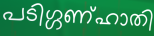
പടിഗ്ഗണ്ഹാതി